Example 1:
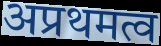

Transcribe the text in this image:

अप्रथमत्व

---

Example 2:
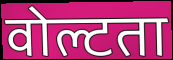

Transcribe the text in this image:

वोल्टता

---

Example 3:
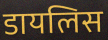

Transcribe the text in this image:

डायलिस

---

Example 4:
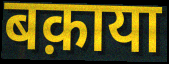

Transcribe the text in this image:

बक़ाया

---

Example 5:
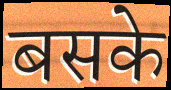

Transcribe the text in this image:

बसके